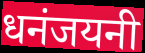
धनंजयनी